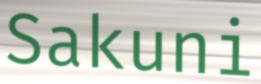
Sakuni